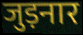
जुड़नार